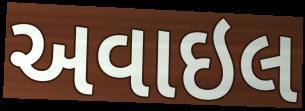
અવાઇલ